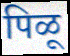
पिळू